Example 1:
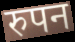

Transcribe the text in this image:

रुपन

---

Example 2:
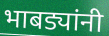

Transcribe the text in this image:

भाबड्यांनी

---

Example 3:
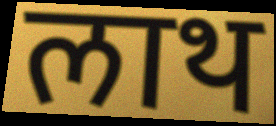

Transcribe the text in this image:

लाथ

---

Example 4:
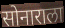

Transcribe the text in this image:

सोनाराला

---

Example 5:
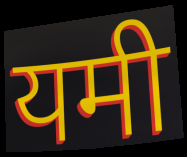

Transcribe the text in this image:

यमी